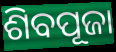
ଶିବପୂଜା